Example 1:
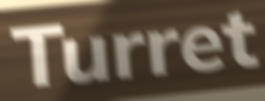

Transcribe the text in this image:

Turret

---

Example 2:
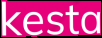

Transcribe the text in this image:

kesta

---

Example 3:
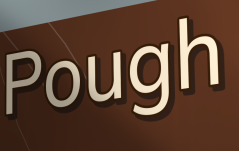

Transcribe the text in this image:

Pough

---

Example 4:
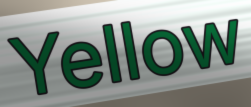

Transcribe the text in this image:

Yellow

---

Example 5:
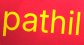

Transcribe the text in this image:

pathil